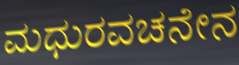
ಮಧುರವಚನೇನ